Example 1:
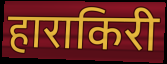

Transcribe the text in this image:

हाराकिरी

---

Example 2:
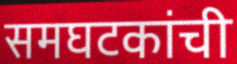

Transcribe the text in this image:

समघटकांची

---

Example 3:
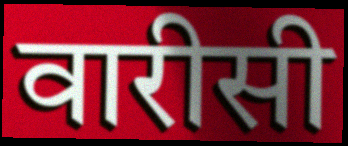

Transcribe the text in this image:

वारीसी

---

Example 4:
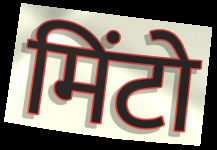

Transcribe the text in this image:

मिंटो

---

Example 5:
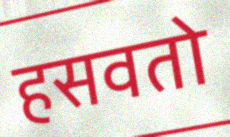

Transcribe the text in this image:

हसवतो